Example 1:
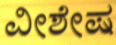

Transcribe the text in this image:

ವೀಶೇಷ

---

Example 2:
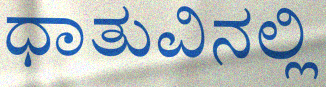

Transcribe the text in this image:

ಧಾತುವಿನಲ್ಲಿ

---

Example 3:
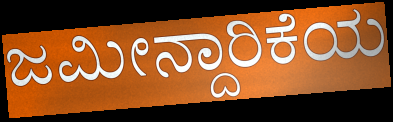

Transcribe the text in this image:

ಜಮೀನ್ದಾರಿಕೆಯ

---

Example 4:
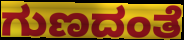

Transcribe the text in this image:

ಗುಣದಂತೆ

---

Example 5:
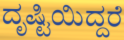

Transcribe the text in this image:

ದೃಷ್ಟಿಯಿದ್ದರೆ